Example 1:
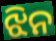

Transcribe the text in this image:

ଝିନ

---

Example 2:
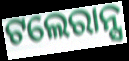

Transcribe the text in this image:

ଟଲେରାନ୍ସ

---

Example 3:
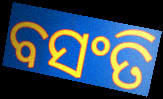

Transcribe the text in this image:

ବସଂତି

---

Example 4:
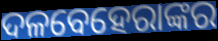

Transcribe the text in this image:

ଦଳବେହେରାଙ୍କର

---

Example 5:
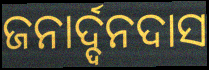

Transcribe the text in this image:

ଜନାର୍ଦ୍ଦନଦାସ